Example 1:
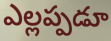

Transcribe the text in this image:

ఎల్లప్పడూ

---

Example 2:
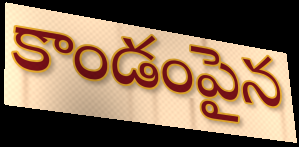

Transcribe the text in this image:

కాండంపైన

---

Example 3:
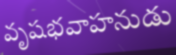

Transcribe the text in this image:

వృషభవాహనుడు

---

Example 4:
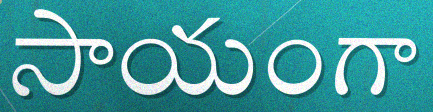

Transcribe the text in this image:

సాయంగా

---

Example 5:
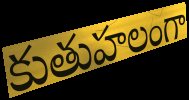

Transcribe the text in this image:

కుతుహలంగా